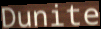
Dunite